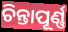
ଚିନ୍ତାପୂର୍ଣ୍ଣ